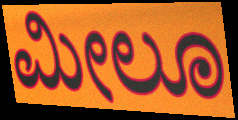
ಮೀಲೂ